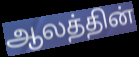
ஆலத்தின்